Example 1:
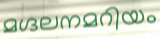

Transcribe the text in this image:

മഗ്ദലനമറിയം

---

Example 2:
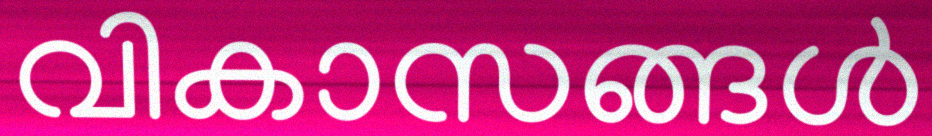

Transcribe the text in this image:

വികാസങ്ങൾ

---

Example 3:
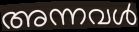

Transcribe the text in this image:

അന്നവൾ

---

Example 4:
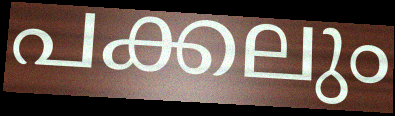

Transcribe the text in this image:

പക്കലും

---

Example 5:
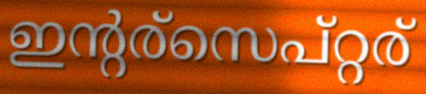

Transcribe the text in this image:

ഇന്റര്സെപ്റ്റര്